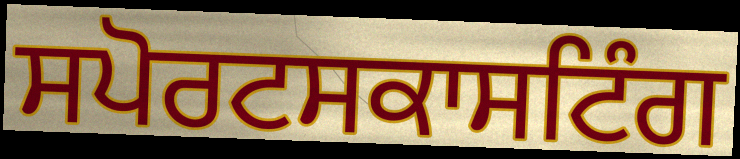
ਸਪੋਰਟਸਕਾਸਟਿੰਗ